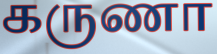
கருணா